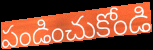
పండించుకోండి